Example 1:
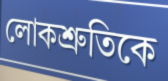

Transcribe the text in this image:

লোকশ্রুতিকে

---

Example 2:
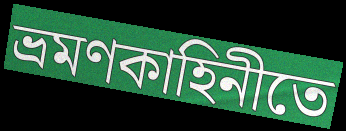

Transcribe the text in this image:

ভ্রমণকাহিনীতে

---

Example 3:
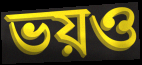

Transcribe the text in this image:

ভয়ও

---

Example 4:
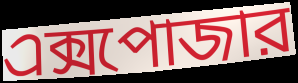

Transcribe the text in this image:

এক্সপোজার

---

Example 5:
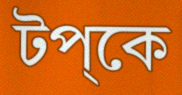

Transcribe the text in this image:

টপ্কে